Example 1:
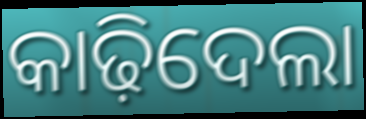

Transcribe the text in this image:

କାଢ଼ିଦେଲା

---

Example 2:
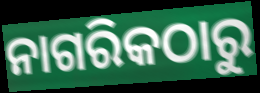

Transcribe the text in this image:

ନାଗରିକଠାରୁ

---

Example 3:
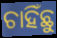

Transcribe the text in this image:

ଚାହିଁଛୁ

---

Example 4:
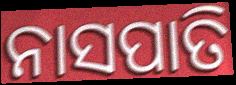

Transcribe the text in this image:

ନାସପାତି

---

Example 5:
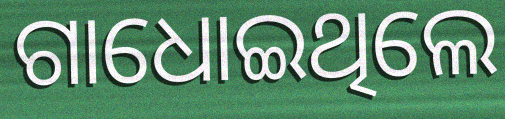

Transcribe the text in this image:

ଗାଧୋଇଥିଲେ